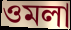
ওমলা